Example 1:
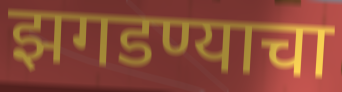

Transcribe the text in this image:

झगडण्याचा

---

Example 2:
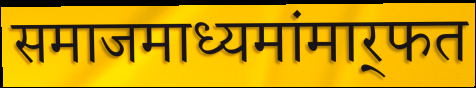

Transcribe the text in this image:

समाजमाध्यमांमार्फत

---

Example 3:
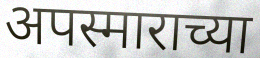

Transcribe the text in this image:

अपस्माराच्या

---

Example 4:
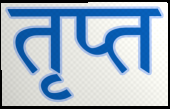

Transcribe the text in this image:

तृप्त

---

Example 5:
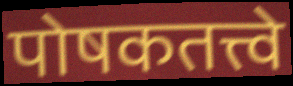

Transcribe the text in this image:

पोषकतत्त्वे